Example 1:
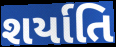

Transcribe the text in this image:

શર્યાતિ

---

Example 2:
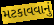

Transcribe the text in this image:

મટકાવવાનું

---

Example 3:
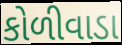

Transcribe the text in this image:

કોળીવાડા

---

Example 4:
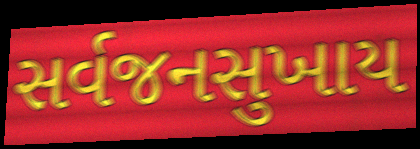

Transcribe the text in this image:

સર્વજનસુખાય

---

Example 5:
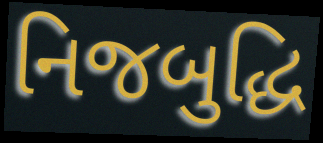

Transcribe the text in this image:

નિજબુદ્ધિ